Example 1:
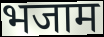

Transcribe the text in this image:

भजाम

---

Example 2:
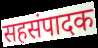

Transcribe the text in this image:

सहसंपादक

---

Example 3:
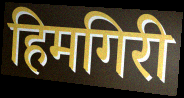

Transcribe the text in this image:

हिमगिरी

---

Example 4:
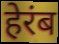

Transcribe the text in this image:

हेरंब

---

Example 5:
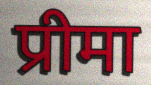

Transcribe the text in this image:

प्रीमा